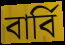
বার্বি